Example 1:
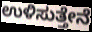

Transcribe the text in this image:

ಉಳಿಸುತ್ತೇನೆ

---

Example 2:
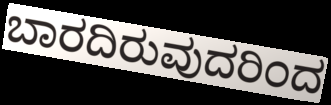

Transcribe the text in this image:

ಬಾರದಿರುವುದರಿಂದ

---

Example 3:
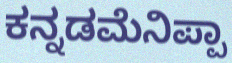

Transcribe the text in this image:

ಕನ್ನಡಮೆನಿಪ್ಪಾ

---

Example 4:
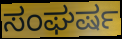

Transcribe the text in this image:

ಸಂಘರ್ಷ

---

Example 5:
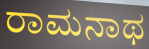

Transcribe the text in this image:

ರಾಮನಾಥ